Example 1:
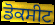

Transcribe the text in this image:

ਡੋਕਸੀਟ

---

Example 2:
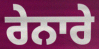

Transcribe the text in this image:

ਰੇਨਾਰੇ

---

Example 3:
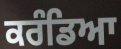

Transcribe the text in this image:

ਕਰੰਡਿਆ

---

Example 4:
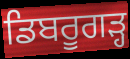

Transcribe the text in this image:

ਡਿਬਰੂਗੜ੍ਹ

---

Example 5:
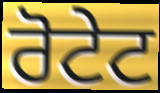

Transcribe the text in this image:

ਰੋਟੇਟ